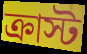
ক্রাস্ট